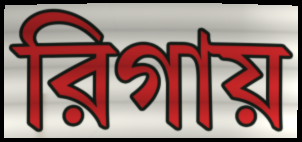
রিগায়